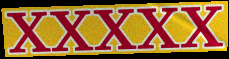
xxxxx